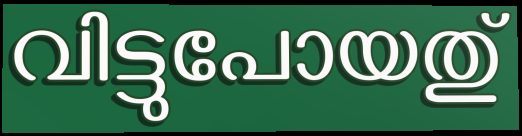
വിട്ടുപോയതു്